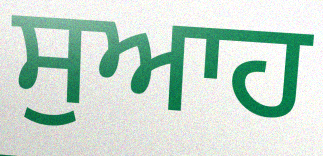
ਸੁਆਹ